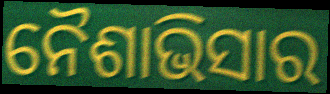
ନୈଶାଭିସାର